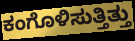
ಕಂಗೊಳಿಸುತ್ತಿತ್ತು